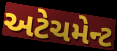
અટેચમેન્ટ